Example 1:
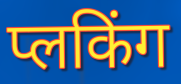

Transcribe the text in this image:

प्लकिंग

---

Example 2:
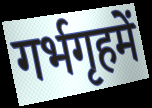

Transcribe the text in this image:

गर्भगृहमें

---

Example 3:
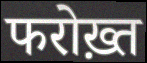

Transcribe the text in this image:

फरोख़्त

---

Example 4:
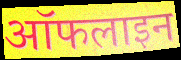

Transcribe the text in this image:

ऑफलाइन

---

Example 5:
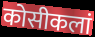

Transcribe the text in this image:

कोसीकलां